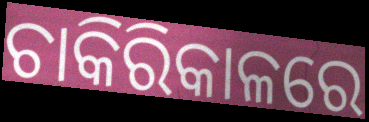
ଚାକିରିକାଳରେ